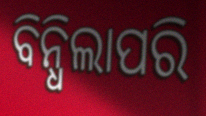
ବିନ୍ଧିଲାପରି